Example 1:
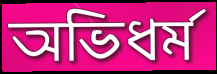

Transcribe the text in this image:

অভিধর্ম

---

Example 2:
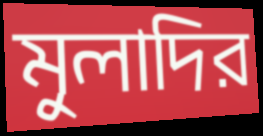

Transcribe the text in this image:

মুলাদির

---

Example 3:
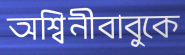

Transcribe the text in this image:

অশ্বিনীবাবুকে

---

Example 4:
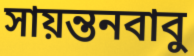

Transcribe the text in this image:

সায়ন্তনবাবু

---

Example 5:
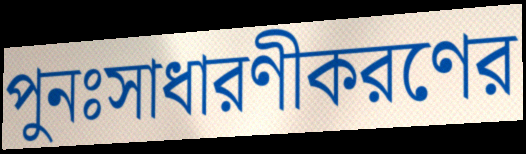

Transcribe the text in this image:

পুনঃসাধারণীকরণের